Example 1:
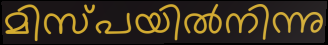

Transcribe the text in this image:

മിസ്പയിൽനിന്നു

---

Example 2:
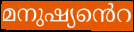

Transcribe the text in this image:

മനുഷ്യൻെറ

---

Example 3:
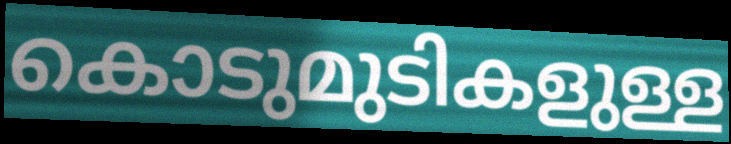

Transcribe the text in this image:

കൊടുമുടികളുള്ള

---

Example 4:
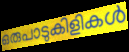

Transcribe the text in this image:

ഒരുപാടുകിളികൾ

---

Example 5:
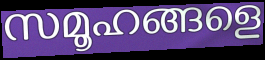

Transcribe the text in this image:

സമൂഹങ്ങളെ